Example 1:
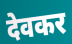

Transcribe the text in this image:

देवकर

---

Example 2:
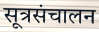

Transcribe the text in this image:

सूत्रसंचालन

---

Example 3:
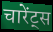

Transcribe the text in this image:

चारेंट्स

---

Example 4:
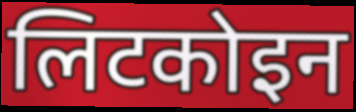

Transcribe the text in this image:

लिटकोइन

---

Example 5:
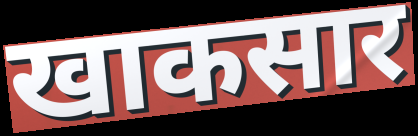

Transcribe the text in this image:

खाकसार